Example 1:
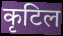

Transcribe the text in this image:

कृटिल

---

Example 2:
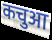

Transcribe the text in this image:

कचुआ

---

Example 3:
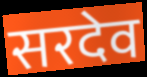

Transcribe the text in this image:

सरदेव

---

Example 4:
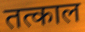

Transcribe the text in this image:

तत्‍काल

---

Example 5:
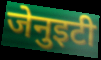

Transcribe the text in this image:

जेनुइटी